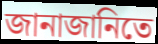
জানাজানিতে